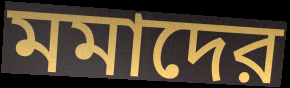
মমাদের